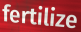
fertilize